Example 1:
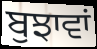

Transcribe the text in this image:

ਬੁਝਾਵਾਂ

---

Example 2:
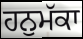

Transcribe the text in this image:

ਹਨੁਮੱਕਾ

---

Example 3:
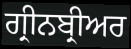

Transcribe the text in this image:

ਗ੍ਰੀਨਬ੍ਰੀਅਰ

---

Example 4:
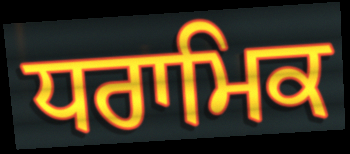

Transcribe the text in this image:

ਧਰਾਮਿਕ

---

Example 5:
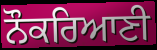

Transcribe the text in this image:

ਨੌਕਰਿਆਣੀ